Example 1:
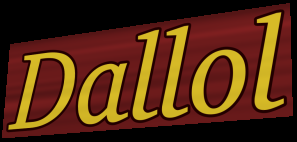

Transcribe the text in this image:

Dallol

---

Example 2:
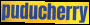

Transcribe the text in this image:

puducherry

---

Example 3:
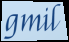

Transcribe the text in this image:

gmil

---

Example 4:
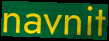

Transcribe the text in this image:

navnit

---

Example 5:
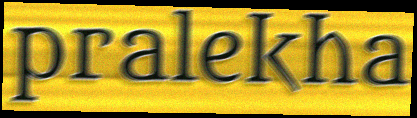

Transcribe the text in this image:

pralekha